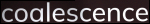
coalescence